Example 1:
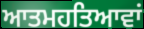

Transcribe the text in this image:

ਆਤਮਹਤਿਆਵਾਂ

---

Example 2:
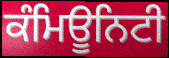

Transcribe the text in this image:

ਕੰਮਿਊਨਿਟੀ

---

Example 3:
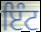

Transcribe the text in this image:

ਇੰਟ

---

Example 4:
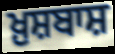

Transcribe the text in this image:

ਖ਼ੁਸ਼ਬਾਸ਼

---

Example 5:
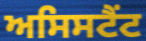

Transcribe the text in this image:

ਅਸਿਸਟੈਂਟ